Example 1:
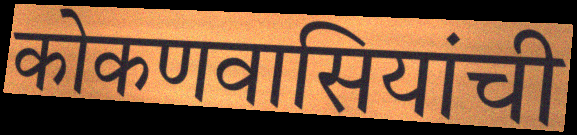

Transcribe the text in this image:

कोकणवासियांची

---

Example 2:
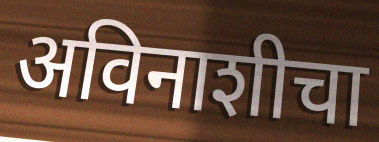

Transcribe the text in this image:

अविनाशीचा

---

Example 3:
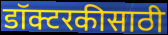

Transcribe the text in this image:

डॉक्टरकीसाठी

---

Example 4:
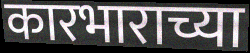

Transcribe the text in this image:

कारभाराच्या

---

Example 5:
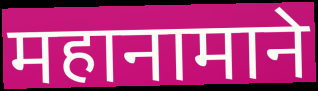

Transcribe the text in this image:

महानामाने